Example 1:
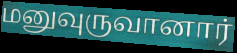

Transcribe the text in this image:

மனுவுருவானார்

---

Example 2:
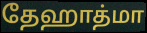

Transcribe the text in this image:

தேஹாத்மா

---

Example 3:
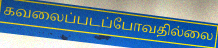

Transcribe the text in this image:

கவலைப்படப்போவதில்லை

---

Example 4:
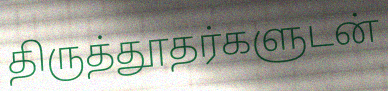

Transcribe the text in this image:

திருத்தூதர்களுடன்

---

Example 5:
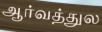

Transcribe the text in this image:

ஆர்வத்துல